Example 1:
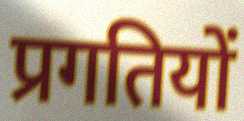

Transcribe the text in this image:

प्रगतियों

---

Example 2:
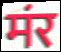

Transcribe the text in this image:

मंर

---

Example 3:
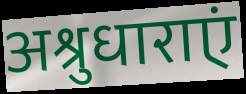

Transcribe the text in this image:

अश्रुधाराएं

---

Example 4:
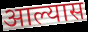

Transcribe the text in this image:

आल्यास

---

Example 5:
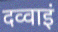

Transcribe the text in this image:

दव्वाइं